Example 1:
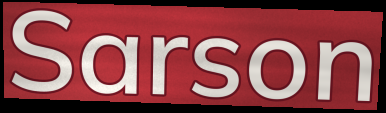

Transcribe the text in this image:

Sarson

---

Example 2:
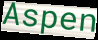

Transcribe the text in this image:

Aspen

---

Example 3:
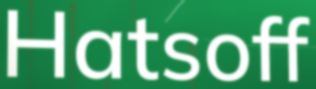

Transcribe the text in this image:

Hatsoff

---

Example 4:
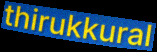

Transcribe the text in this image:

thirukkural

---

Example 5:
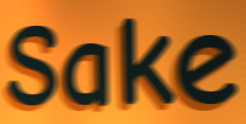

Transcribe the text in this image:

Sake